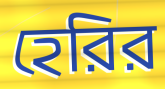
হেরির